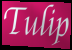
Tulip